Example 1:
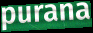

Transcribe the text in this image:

purana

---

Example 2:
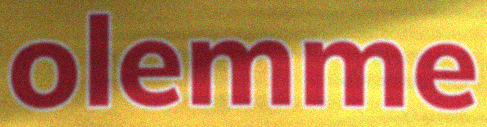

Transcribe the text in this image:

olemme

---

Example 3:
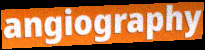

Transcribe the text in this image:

angiography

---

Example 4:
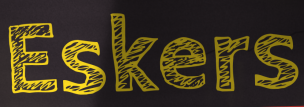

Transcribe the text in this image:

Eskers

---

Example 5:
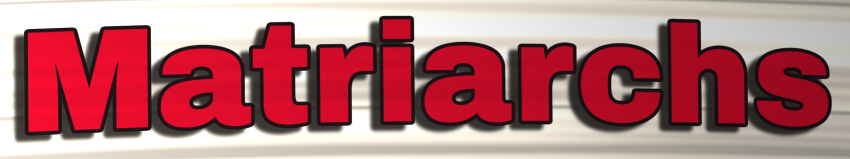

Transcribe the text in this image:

Matriarchs